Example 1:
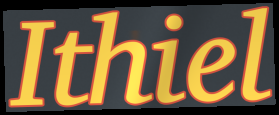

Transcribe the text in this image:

Ithiel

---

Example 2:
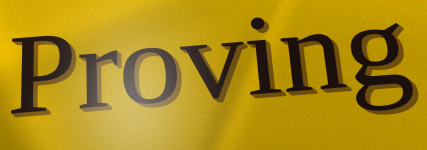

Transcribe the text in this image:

Proving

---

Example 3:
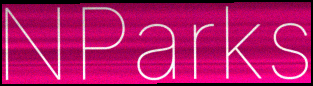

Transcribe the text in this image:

NParks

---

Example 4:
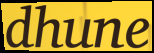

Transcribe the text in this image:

dhune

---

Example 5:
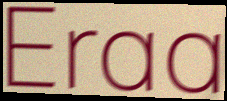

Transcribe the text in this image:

Eraa